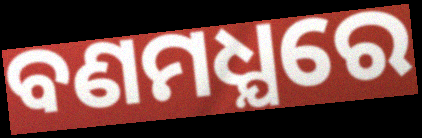
ବଣମଧ୍ଯରେ